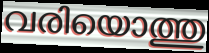
വരിയൊത്തു